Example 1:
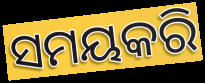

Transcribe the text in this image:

ସମୟକରି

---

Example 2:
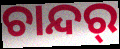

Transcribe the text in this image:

ଚାନ୍ଦର୍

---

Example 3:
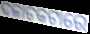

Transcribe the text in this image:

ଦଳାଚକଟାରେ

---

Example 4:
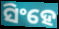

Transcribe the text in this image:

ସିଂହେ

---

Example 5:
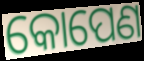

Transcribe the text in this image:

କୋପେଣ